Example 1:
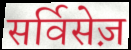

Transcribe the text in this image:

सर्विसेज़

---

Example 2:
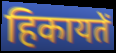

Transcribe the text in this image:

हिकायतें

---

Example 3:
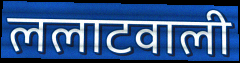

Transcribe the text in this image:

ललाटवाली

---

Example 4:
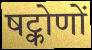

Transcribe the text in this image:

षट्कोणों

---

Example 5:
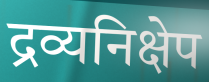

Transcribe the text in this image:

द्रव्यनिक्षेप